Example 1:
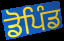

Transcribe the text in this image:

ਡੋਪਿੰਡ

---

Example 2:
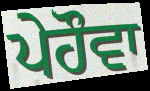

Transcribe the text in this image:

ਪੇਹੌਵਾ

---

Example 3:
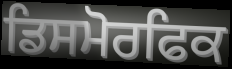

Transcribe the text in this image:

ਡਿਸਮੋਰਫਿਕ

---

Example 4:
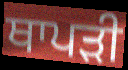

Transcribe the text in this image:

ਥਾਪੜੀ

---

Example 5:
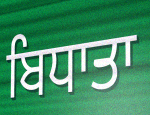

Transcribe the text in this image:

ਬਿਧਾਤਾ